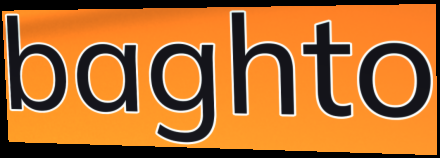
baghto